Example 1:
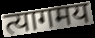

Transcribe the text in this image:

त्यागमय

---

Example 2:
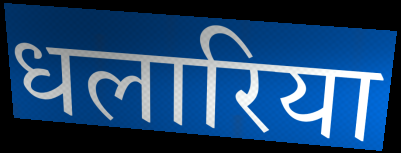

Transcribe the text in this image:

धलारिया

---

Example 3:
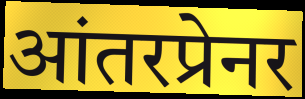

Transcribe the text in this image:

आंतरप्रेनर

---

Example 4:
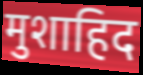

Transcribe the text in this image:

मुशाहिद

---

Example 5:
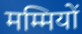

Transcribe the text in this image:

मम्मियों